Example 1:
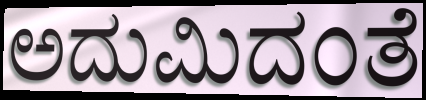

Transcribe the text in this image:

ಅದುಮಿದಂತೆ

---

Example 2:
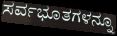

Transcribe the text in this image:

ಸರ್ವಭೂತಗಳನ್ನೂ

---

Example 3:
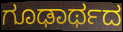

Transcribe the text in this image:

ಗೂಢಾರ್ಥದ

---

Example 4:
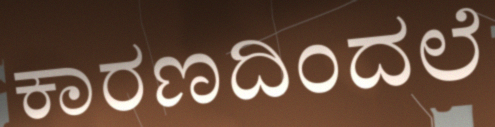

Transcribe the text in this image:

ಕಾರಣದಿಂದಲೆ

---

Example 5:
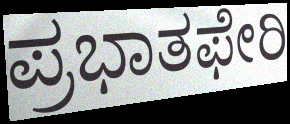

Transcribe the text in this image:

ಪ್ರಭಾತಫೇರಿ